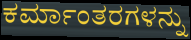
ಕರ್ಮಾಂತರಗಳನ್ನು